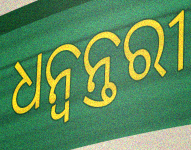
ଧନ୍ବନ୍ତରୀ